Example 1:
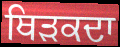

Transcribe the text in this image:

ਥਿੜਕਦਾ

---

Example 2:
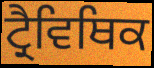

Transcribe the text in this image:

ਟ੍ਰੈਵਿਥਿਕ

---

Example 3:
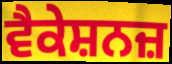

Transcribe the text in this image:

ਵੈਕੇਸ਼ਨਜ਼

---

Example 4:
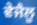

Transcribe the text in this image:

ਵੇਜੈਲੂ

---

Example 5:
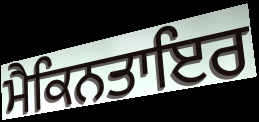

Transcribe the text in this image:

ਮੈਕਿਨਤਾਇਰ